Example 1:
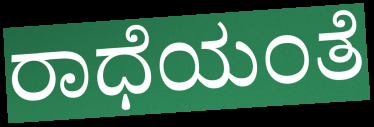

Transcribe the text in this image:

ರಾಧೆಯಂತೆ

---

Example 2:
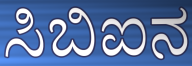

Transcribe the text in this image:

ಸಿಬಿಐನ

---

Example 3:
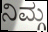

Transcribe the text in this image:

ನಿಮ್ಗ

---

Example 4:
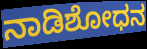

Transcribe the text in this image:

ನಾಡಿಶೋಧನ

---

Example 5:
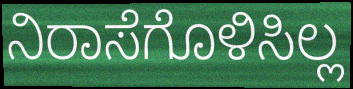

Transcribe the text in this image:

ನಿರಾಸೆಗೊಳಿಸಿಲ್ಲ